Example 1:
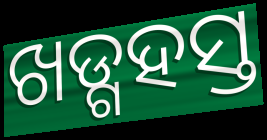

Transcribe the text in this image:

ଖଡ୍ଗହସ୍ତ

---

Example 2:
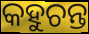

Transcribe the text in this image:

କହୁଚନ୍ତ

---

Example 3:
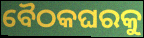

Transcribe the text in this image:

ବୈଠକଘରକୁ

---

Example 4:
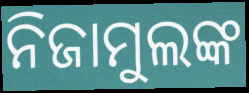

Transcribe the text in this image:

ନିଜାମୁଲଙ୍କ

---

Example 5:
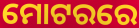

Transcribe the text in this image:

ମୋଟରରେ